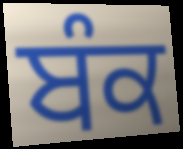
ਬੰਕ